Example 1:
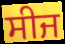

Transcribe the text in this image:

ਸੀਜ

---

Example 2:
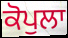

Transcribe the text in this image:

ਕੋਪੁਲਾ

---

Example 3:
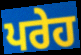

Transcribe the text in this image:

ਪਰੇਹ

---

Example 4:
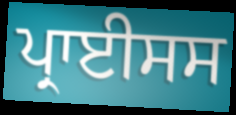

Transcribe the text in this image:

ਪ੍ਰਾਈਸਸ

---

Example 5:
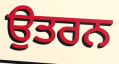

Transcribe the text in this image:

ਉਤਰਨ